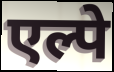
एल्पे